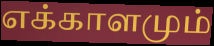
எக்காளமும்